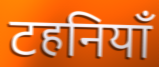
टहनियाँ